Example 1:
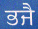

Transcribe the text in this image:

ਭਜੈ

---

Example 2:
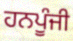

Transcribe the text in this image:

ਹਨਪੂੰਜੀ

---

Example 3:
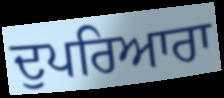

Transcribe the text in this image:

ਦੁਪਰਿਆਰਾ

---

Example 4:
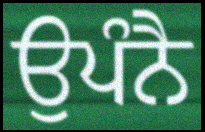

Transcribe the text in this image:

ਉਪੰਨੈ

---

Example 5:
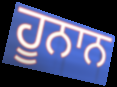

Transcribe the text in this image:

ਹੂਨਾਨ